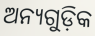
ଅନ୍ୟଗୁଡ଼ିକ